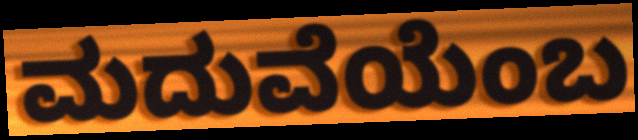
ಮದುವೆಯೆಂಬ